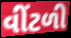
વીંટળી